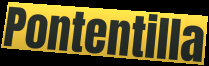
Pontentilla